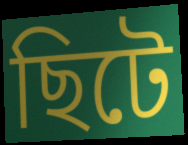
ছিটে